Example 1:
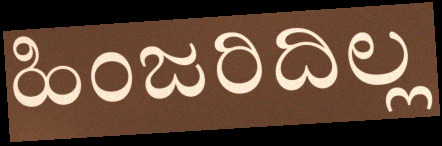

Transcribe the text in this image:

ಹಿಂಜರಿದಿಲ್ಲ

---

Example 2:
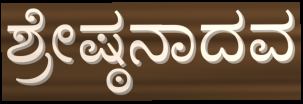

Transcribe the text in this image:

ಶ್ರೇಷ್ಠನಾದವ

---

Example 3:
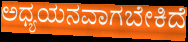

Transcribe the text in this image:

ಅಧ್ಯಯನವಾಗಬೇಕಿದೆ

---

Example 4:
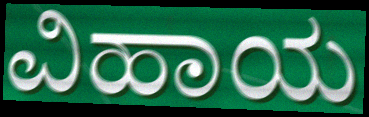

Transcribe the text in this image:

ವಿಹಾಯ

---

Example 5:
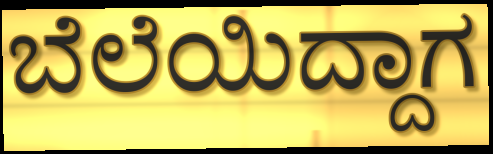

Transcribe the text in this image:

ಬೆಲೆಯಿದ್ದಾಗ